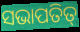
ସଭାପତିତ୍